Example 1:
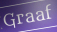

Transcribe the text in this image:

Graaf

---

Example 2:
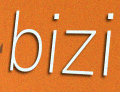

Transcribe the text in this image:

bizi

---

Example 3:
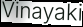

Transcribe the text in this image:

Vinayaki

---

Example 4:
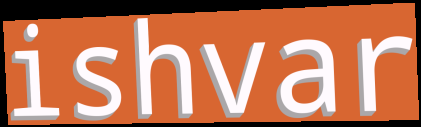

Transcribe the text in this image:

ishvar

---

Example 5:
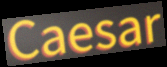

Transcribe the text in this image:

Caesar